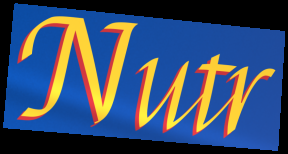
Nutr